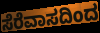
ಸೆರೆವಾಸದಿಂದ